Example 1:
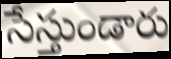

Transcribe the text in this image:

సేస్తుండారు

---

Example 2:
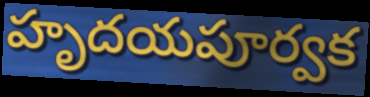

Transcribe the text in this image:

హృదయపూర్వక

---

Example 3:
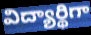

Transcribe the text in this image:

విద్యార్థిగా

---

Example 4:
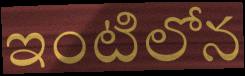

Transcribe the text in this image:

ఇంటిలోన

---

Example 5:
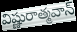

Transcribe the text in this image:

విష్ణురాత్మవాన్